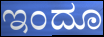
ಇಂದೂ